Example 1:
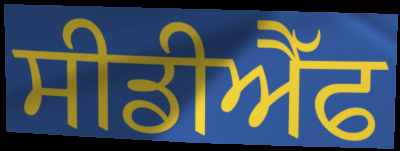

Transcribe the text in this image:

ਸੀਡੀਐੱਫ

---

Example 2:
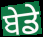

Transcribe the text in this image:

ਬੇਡੇ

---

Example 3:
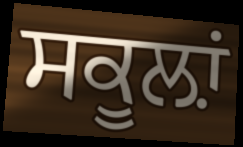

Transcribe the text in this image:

ਸਕੂਲ਼ਾਂ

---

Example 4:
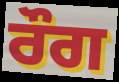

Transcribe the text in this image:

ਰੌਗ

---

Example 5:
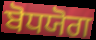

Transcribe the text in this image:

ਬੋਧਯੋਗ